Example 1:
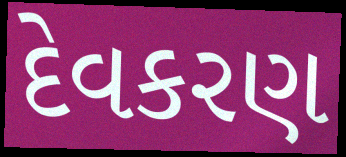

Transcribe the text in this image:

દેવકરણ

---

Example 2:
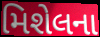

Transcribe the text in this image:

મિશેલના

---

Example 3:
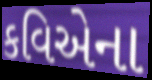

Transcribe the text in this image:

કવિએના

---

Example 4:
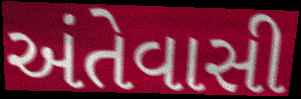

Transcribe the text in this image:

અંતેવાસી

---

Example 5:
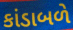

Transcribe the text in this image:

કાંડાબળે